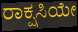
ರಾಕ್ಷಸಿಯೇ